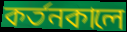
কর্তনকালে